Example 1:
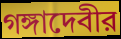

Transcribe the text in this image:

গঙ্গাদেবীর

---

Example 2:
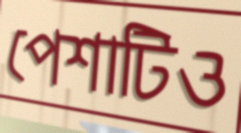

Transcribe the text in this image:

পেশাটিও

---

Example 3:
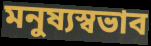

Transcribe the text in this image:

মনুষ্যস্বভাব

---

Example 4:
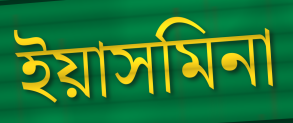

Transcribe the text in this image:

ইয়াসমিনা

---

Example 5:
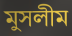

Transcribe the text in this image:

মুসলীম